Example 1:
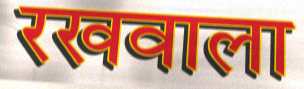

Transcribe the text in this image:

रखवाला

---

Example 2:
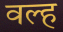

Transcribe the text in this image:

वल्ह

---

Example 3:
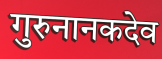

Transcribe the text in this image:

गुरुनानकदेव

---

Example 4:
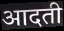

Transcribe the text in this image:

आदती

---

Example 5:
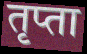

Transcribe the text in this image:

तृप्ता